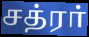
சத்ரர்